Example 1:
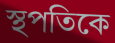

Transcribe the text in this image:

স্থপতিকে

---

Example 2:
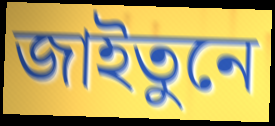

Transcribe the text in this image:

জাইতুনে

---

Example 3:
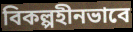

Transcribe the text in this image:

বিকল্পহীনভাবে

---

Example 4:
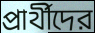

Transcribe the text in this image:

প্রার্থীদের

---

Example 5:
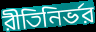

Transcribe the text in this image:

রীতিনির্ভর